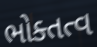
ભોક્તત્વ